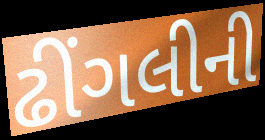
ઢીંગલીની